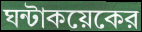
ঘন্টাকয়েকের